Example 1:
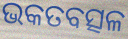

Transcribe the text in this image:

ଭକତବତ୍ସଳ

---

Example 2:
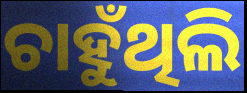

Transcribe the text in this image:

ଚାହୁଁଥିଲି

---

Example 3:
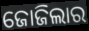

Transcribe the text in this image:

ଜୋଜିଲାର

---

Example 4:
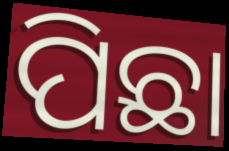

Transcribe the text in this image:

ପିଛା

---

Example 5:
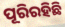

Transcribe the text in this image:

ପୂରିରହିଛି